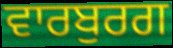
ਵਾਰਬੁਰਗ